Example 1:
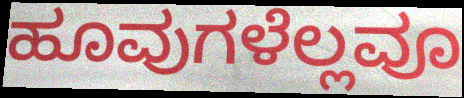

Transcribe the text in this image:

ಹೂವುಗಳೆಲ್ಲವೂ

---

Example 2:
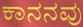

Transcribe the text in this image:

ಕಾನನವು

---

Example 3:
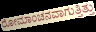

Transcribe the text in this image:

ರೋಮಾಂಚನವಾಗುತ್ತಿತ್ತು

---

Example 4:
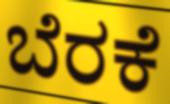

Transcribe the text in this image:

ಬೆರಕೆ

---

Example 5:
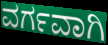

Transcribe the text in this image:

ವರ್ಗವಾಗಿ